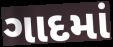
ગાદમાં